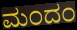
ಮಂದಂ